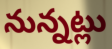
నున్నట్లు